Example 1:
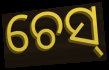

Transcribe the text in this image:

ଚେସ୍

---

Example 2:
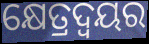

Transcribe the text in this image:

କ୍ଷେତ୍ରଦ୍ୱୟର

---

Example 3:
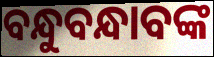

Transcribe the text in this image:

ବନ୍ଧୁବନ୍ଧାବଙ୍କ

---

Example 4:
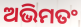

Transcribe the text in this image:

ଅଭିମତଂ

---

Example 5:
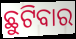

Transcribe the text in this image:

ଛୁଟିବାର